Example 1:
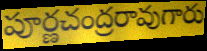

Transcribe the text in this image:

పూర్ణచంద్రరావుగారు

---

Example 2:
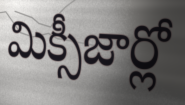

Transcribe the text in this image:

మిక్సీజార్లో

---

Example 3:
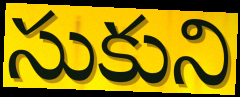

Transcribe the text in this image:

సుకుని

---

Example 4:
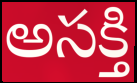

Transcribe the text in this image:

అసక్తి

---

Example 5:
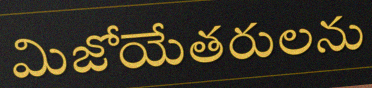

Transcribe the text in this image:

మిజోయేతరులను